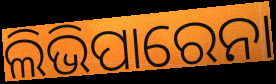
ଲିଭିପାରେନା